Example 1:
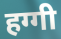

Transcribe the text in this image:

हग्गी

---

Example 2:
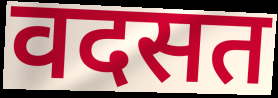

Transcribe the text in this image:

वदसत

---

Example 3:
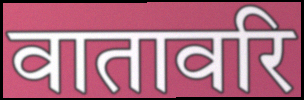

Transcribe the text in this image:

वातावरि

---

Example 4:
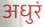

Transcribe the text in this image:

अधुरं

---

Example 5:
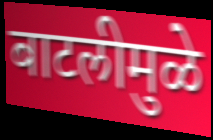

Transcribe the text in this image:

बाटलीमुळे